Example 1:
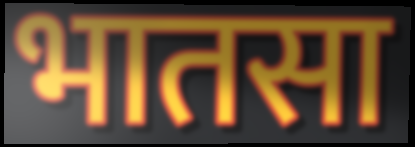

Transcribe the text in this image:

भातसा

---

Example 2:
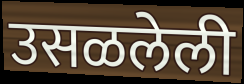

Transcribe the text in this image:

उसळलेली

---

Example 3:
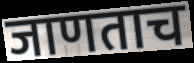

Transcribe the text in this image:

जाणताच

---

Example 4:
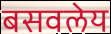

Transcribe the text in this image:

बसवलेय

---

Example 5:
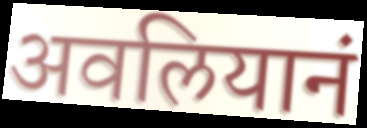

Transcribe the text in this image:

अवलियानं